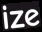
ize